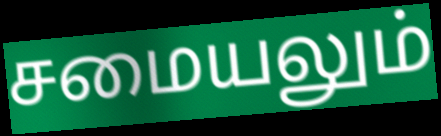
சமையலும்